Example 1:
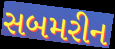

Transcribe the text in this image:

સબમરીન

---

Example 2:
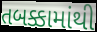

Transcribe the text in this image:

તબક્કામાંથી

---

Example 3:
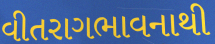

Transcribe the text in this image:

વીતરાગભાવનાથી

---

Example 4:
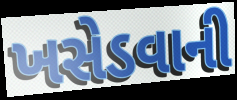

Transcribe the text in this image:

ખસેડવાની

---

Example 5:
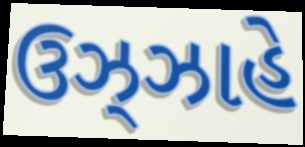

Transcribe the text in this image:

ઉઝ્ઝાહે